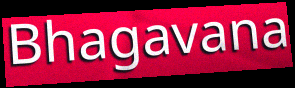
Bhagavana